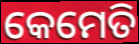
କେମେତି